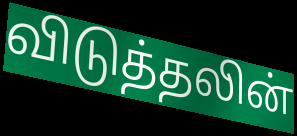
விடுத்தலின்